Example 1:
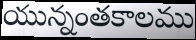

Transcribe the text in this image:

యున్నంతకాలము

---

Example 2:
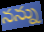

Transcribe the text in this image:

నన్ను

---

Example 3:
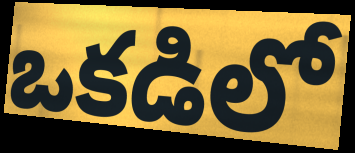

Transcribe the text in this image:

ఒకడిలో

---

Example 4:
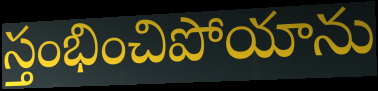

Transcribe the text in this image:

స్తంభించిపోయాను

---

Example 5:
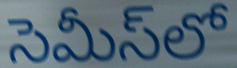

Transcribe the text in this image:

సెమీస్‌లో